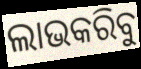
ଲାଭକରିବୁ